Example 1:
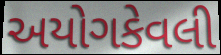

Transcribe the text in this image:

અયોગકેવલી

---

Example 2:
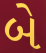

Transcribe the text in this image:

બે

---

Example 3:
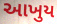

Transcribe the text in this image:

આખુય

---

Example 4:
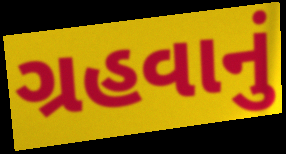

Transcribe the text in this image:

ગ્રહવાનું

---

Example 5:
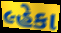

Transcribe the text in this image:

લ્હેકા